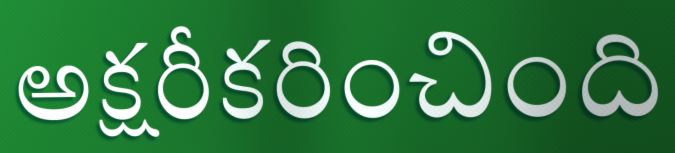
అక్షరీకరించింది